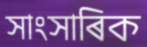
সাংসাৰিক